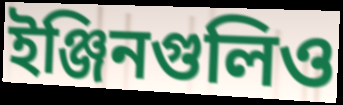
ইঞ্জিনগুলিও